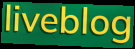
liveblog